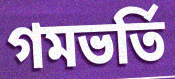
গমভর্তি